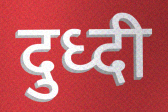
दुध्दी